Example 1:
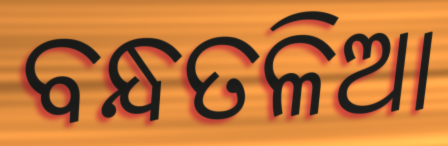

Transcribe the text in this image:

ବନ୍ଧତଳିଆ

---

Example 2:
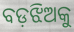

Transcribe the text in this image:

ବଡ଼ଝିଅକୁ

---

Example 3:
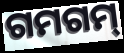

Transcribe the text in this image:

ଗମଗମ୍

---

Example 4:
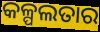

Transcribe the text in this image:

କଳ୍ପଲତାର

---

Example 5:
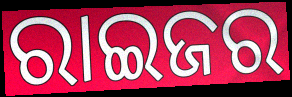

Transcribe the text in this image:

ରାଇଜର